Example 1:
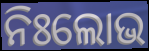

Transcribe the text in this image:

ନିଃଲୋଭ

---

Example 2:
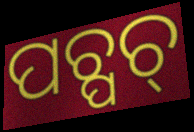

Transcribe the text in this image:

ପଚ୍ପଚ୍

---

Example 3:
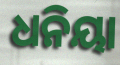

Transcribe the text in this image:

ଧନିୟା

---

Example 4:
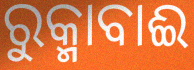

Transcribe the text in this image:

ରୁକ୍ମାବାଈ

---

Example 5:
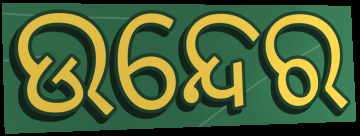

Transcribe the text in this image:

ଉନ୍ଦେର